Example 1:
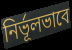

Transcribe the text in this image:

নির্ভূলভাবে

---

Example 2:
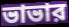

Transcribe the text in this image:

ভাভার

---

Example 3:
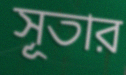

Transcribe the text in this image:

সূতার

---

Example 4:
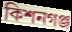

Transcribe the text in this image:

কিশনগঞ্জ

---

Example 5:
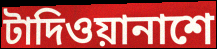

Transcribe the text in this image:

টাদিওয়ানাশে